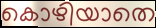
കൊഴിയാതെ